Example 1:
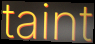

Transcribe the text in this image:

taint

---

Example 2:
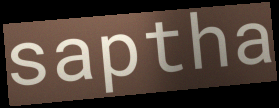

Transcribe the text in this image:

saptha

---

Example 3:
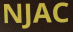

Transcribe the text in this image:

NJAC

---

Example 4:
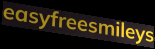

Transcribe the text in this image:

easyfreesmileys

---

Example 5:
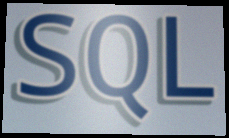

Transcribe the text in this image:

SQL